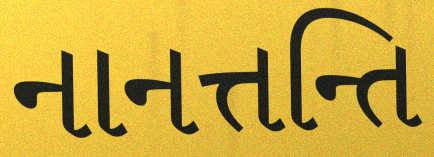
નાનત્તન્તિ